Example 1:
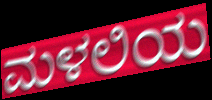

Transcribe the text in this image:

ಮಳಲಿಯ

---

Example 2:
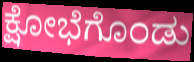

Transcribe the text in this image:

ಕ್ಷೋಭೆಗೊಂಡು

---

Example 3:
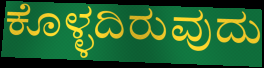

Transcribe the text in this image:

ಕೊಳ್ಳದಿರುವುದು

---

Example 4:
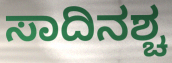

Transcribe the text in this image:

ಸಾದಿನಶ್ಚ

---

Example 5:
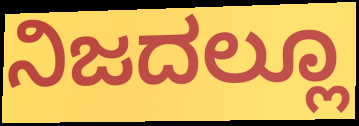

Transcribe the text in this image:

ನಿಜದಲ್ಲೂ